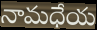
నామధేయ